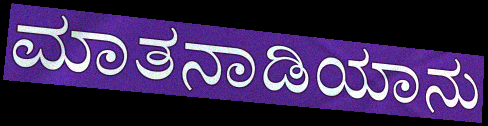
ಮಾತನಾಡಿಯಾನು